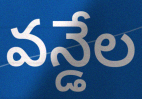
వన్డేల